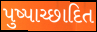
પુષ્પાચ્છાદિત